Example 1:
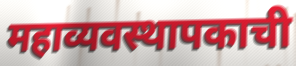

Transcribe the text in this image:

महाव्यवस्थापकाची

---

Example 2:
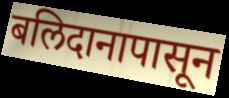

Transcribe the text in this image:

बलिदानापासून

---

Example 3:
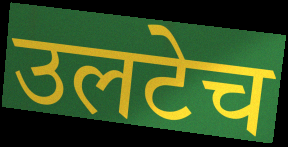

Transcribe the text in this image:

उलटेच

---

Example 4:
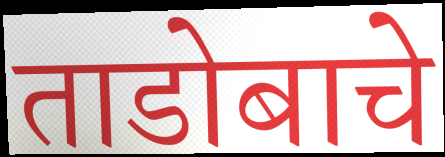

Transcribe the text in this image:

ताडोबाचे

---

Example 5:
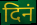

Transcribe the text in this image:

दिनं